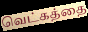
வெட்கத்தை